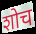
शोच